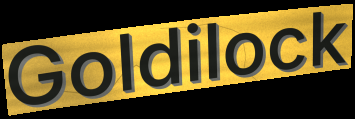
Goldilock